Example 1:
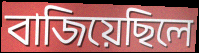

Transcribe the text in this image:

বাজিয়েছিলে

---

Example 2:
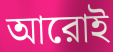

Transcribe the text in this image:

আরোই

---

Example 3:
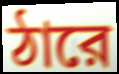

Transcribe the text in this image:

ঠারে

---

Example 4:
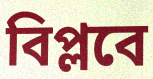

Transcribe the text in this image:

বিপ্লবে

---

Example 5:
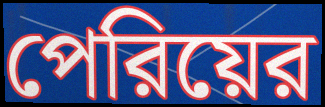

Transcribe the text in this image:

পেরিয়ের